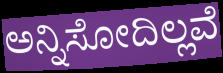
ಅನ್ನಿಸೋದಿಲ್ಲವೆ